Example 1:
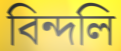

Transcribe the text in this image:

বিন্দলি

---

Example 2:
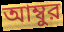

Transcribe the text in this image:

আম্বুর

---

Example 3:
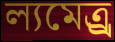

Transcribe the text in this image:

ল্যমেত্র্র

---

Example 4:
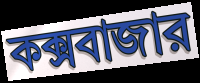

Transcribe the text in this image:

কক্সবাজার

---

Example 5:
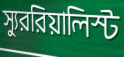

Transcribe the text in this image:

স্যুররিয়ালিস্ট